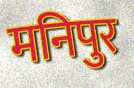
मनिपुर